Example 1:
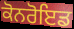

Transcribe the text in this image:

ਕੋਨਰੋਇਡ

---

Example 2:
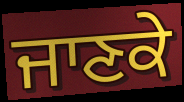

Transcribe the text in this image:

ਜਾਣਕੇ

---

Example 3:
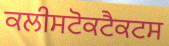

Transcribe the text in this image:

ਕਲੀਸਟੋਕਟੈਕਟਸ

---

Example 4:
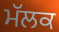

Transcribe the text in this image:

ਮੱਲਕ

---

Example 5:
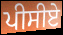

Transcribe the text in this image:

ਪੀਸੀਏ